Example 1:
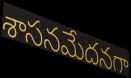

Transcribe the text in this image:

శాసనమేదనగా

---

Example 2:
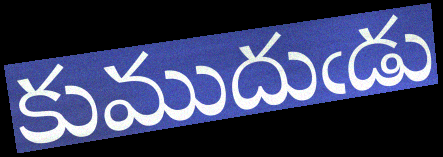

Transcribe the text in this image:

కుముదుఁడు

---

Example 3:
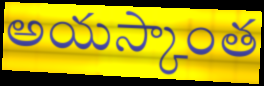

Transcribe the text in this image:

అయస్కాంత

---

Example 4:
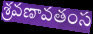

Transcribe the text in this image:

శ్రవణావతంస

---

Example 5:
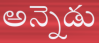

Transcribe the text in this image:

అన్నెడు